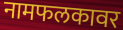
नामफलकावर